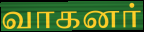
வாகனர்